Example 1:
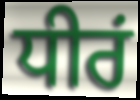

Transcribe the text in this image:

ਧੀਰਂ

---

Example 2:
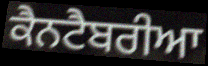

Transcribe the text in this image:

ਕੈਨਟੈਬਰੀਆ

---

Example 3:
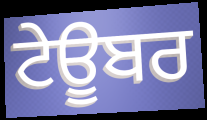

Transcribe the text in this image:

ਟੇਊਬਰ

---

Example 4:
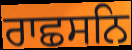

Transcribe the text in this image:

ਰਾਛਸਨਿ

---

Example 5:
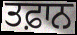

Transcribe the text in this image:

ਤਫ਼ਾਨ